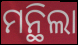
ମନ୍ଥିଲା